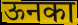
ऊनका